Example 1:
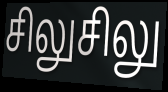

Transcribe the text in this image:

சிலுசிலு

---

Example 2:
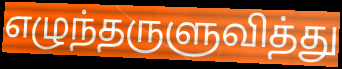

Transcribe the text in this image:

எழுந்தருளுவித்து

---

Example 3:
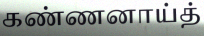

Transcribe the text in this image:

கண்ணனாய்த்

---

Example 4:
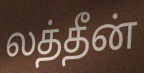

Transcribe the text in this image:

லத்தீன்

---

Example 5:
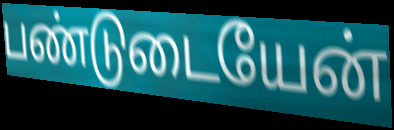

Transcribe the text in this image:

பண்டுடையேன்